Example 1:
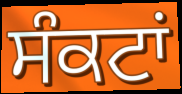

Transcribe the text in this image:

ਸੰਕਟਾਂ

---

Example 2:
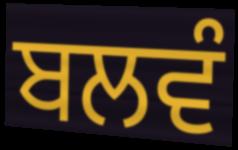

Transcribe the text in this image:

ਬਲਵੰ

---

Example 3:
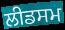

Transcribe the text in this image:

ਲੀਡਸਮ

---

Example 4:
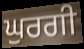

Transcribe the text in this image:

ਘੁਰਗੀ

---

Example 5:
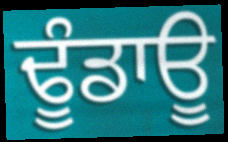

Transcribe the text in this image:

ਢੂੰਡਾਊ